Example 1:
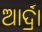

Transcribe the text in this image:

ଆର୍ଦ୍ରା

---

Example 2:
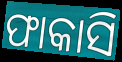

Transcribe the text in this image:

ଫାକାସି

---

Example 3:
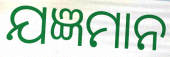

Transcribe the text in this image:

ଯଜ୍ଞମାନ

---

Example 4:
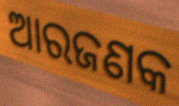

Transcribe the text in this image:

ଆରଜଣକ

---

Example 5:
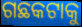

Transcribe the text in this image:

ଗଛକଟାକୁ